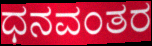
ಧನವಂತರ